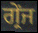
ਗ੍ਰੇਂਜ